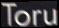
Toru